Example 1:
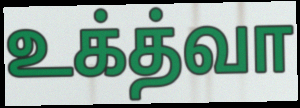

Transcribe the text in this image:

உக்த்வா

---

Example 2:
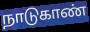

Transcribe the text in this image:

நாடுகாண்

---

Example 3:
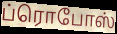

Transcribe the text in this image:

ப்ரொபோஸ்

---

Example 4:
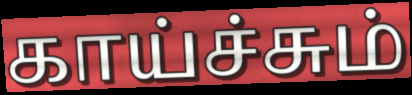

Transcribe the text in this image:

காய்ச்சும்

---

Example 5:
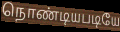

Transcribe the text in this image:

நொண்டியபடியே